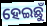
ହେଇଛୁଁ